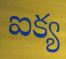
ఐక్య